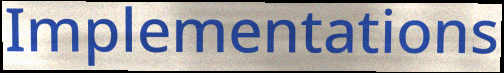
Implementations